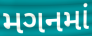
મગનમાં